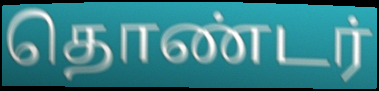
தொண்டர்